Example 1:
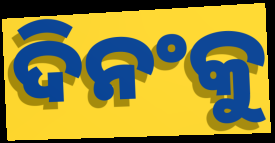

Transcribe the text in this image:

ଦିନଂକୁ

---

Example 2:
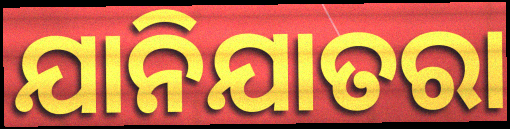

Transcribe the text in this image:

ଯାନିଯାତରା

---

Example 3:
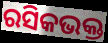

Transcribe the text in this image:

ରସିକଭକ୍ତ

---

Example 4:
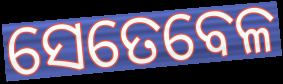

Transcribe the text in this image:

ସେତେବେଳ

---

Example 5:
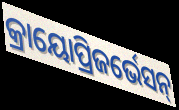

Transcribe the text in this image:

କ୍ରାୟୋପ୍ରିଜର୍ଭେସନ୍